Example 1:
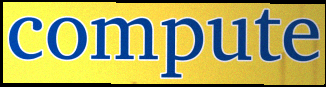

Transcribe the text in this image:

compute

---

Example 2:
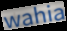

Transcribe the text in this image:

wahia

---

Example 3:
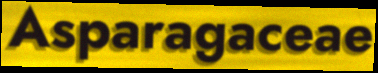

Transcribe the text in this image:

Asparagaceae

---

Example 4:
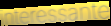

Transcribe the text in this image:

interessante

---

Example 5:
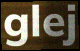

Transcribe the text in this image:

glej